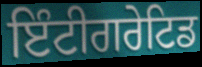
ਇੰਟੀਗਰੇਟਿਡ